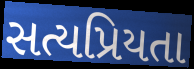
સત્યપ્રિયતા